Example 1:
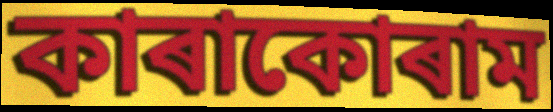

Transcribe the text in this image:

কাৰাকোৰাম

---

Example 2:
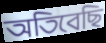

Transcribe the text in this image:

অতিবেছি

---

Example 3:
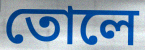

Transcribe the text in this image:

তোলে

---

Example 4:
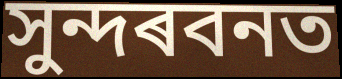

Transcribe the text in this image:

সুন্দৰবনত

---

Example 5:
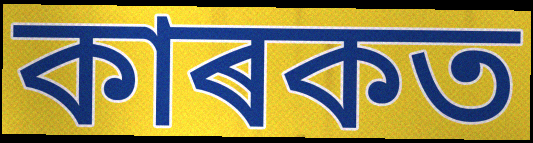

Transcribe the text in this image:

কাৰকত